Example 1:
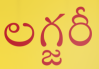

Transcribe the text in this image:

లగ్జరీ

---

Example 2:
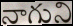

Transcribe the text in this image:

నాగుని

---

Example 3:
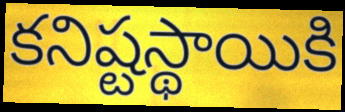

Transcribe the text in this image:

కనిష్టస్థాయికి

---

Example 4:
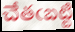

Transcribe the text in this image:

చేతఁబట్టి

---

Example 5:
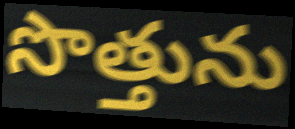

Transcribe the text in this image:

సొత్తును